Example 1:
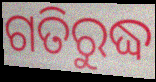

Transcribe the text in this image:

ଗତିରୁଦ୍ଧ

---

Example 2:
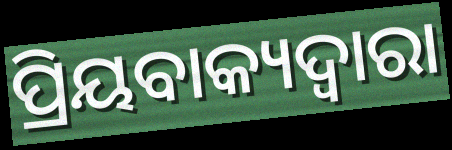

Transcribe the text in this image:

ପ୍ରିୟବାକ୍ୟଦ୍ୱାରା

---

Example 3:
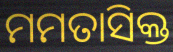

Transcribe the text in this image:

ମମତାସିକ୍ତ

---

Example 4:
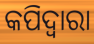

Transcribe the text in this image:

କପିଦ୍ୱାରା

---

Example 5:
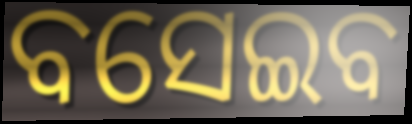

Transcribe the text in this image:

ବସେଇବ